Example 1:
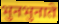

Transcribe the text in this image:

भुनभुनाते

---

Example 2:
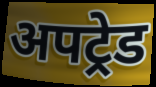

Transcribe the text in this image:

अपट्रेड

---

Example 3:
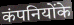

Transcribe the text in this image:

कंपनियोंके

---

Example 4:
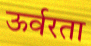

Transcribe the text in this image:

ऊर्वरता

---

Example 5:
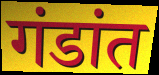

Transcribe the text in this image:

गंडांत